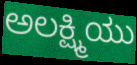
ಅಲಕ್ಷ್ಮಿಯು